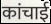
कांचाई